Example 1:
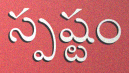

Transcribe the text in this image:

స్పష్టం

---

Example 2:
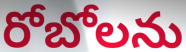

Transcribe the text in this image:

రోబోలను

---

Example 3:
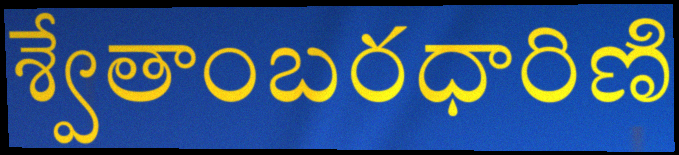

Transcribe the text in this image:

శ్వేతాంబరధారిణి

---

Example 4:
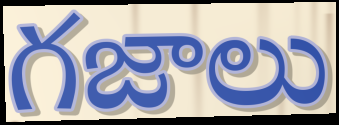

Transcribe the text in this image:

గజాలు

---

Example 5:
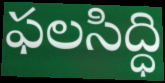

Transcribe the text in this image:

ఫలసిద్ధి